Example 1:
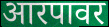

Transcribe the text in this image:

आरपावर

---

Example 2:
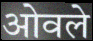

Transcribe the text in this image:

ओवले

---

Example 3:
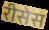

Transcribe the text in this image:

रीसेस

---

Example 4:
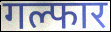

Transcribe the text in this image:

गल्फार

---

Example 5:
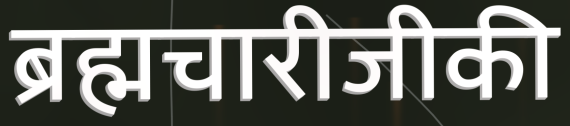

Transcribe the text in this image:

ब्रह्मचारीजीकी